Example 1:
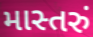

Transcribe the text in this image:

માસ્તરું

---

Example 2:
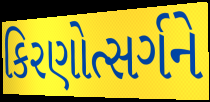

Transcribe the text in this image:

કિરણોત્સર્ગને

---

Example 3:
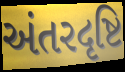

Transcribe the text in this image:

અંતરદૃષ્ટિ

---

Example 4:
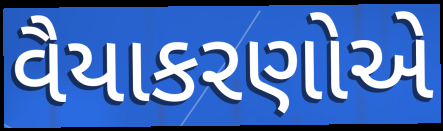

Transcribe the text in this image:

વૈયાકરણોએ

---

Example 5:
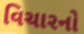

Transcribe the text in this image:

વિચારનો